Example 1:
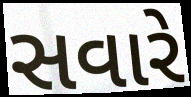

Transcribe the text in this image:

સવારે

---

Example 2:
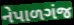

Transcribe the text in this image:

નેપાળગંજ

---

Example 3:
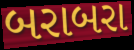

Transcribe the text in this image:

બરાબરા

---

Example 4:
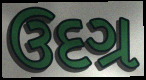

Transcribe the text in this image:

ઉદગ્ર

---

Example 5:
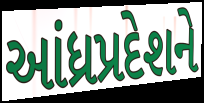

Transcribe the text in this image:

આંધ્રપ્રદેશને